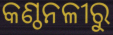
କଣ୍ଠନଳୀରୁ